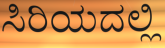
ಸಿರಿಯದಲ್ಲಿ